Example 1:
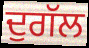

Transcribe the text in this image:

ਦੁਗੱਲ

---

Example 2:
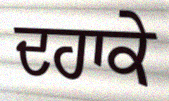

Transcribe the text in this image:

ਦਹਾਕੇ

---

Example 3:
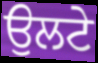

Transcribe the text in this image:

ਉਲਟੇ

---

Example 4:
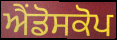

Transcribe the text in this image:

ਐਂਡੋਸਕੋਪ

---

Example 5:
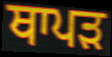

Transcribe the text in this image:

ਥਾਪੜ